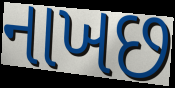
નાખછ